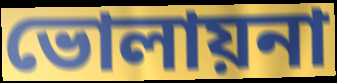
ভোলায়না